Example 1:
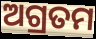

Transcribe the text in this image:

ଅଗ୍ରତମ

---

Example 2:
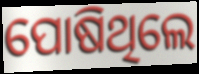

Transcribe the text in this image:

ପୋଷିଥିଲେ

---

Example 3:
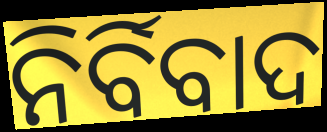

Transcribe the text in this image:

ନିର୍ବିବାଦ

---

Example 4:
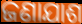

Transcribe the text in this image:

ଜଣାଯାଶ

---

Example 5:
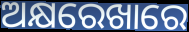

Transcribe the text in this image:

ଅକ୍ଷରେଖାରେ